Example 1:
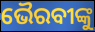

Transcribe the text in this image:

ଭୈରବୀଙ୍କୁ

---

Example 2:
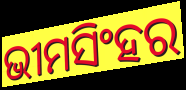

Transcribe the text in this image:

ଭୀମସିଂହର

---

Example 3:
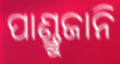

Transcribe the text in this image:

ପାଣ୍ଡ୍ରୁଜାନି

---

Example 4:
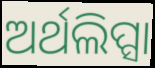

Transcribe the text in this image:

ଅର୍ଥଲିପ୍ସା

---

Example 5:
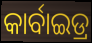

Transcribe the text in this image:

କାର୍ବାଇଡ୍ର